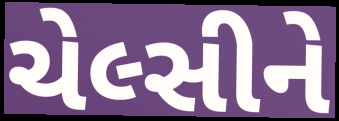
ચેલ્સીને